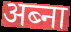
अब्ना